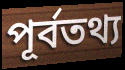
পূর্বতথ্য